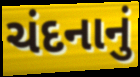
ચંદનાનું